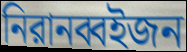
নিরানব্বইজন